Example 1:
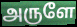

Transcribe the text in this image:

அருளே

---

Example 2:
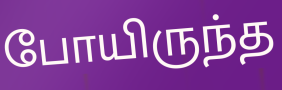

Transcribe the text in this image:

போயிருந்த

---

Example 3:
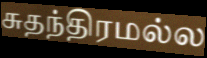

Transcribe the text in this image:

சுதந்திரமல்ல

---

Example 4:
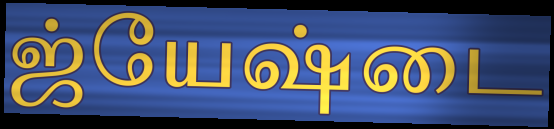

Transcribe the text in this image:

ஜ்யேஷ்டை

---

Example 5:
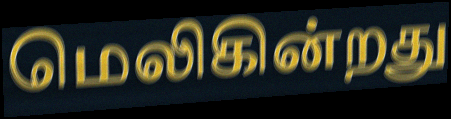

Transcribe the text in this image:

மெலிகின்றது